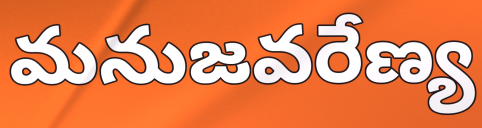
మనుజవరేణ్య